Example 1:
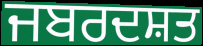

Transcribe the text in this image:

ਜਬਰਦਸ਼ਤ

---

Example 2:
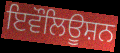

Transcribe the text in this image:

ਇਵੌਲਿਊਸ਼ਨ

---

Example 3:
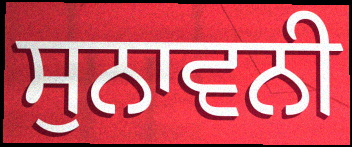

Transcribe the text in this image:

ਸੁਨਾਵਨੀ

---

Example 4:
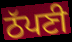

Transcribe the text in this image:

ਠੱਪਣੀ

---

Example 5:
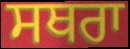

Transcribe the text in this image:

ਸਥਰਾ